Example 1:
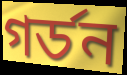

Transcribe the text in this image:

গর্ডন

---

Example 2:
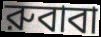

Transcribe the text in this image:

রুবাবা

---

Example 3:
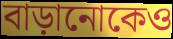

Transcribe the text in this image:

বাড়ানোকেও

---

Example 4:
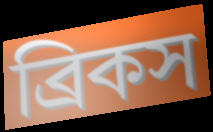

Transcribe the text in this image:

ব্রিকস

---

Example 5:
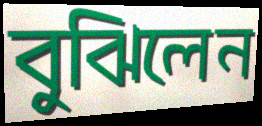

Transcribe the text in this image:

বুঝিলেন